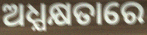
ଅଧ୍ଯକ୍ଷତାରେ